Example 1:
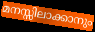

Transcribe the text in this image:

മനസ്സിലാക്കാനും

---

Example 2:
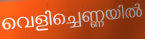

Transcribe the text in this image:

വെളിച്ചെണ്ണയിൽ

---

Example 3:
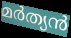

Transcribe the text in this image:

മർത്യൻ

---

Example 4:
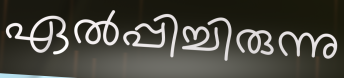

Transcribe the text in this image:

ഏൽപ്പിച്ചിരുന്നു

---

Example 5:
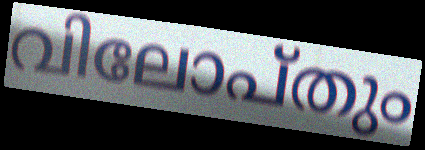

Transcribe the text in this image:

വിലോപ്തും